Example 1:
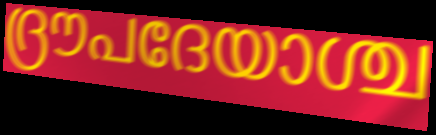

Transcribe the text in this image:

ദ്രൗപദേയാശ്ച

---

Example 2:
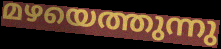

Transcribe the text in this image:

മഴയെത്തുന്നു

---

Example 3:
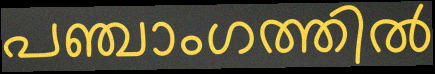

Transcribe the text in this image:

പഞ്ചാംഗത്തിൽ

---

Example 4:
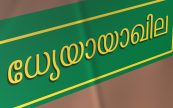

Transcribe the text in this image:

ധ്യേയായാഖില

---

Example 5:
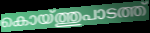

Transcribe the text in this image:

കൊയ്ത്തുപാടത്ത്